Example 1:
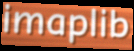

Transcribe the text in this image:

imaplib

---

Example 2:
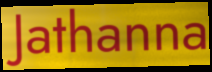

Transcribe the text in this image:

Jathanna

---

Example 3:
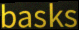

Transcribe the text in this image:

basks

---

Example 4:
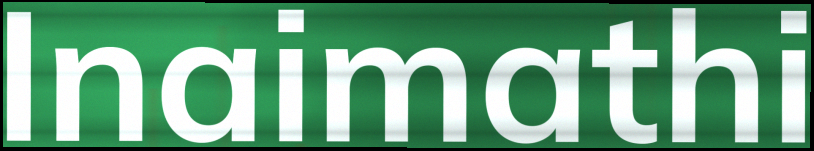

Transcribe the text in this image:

Inaimathi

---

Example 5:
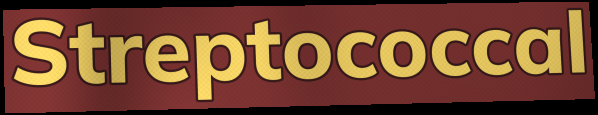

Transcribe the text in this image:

Streptococcal